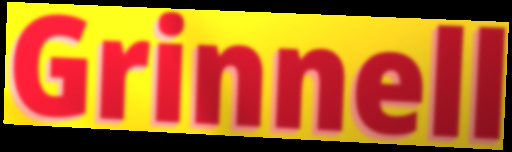
Grinnell